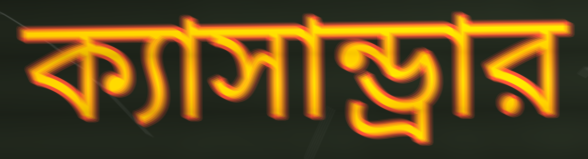
ক্যাসান্ড্রার